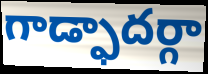
గాడ్ఫాదర్గా